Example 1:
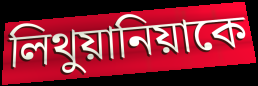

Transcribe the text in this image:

লিথুয়ানিয়াকে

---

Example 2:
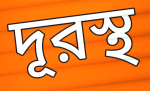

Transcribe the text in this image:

দূরস্থ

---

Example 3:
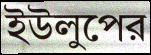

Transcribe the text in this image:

ইউলুপের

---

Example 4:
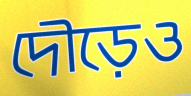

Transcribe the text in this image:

দৌড়েও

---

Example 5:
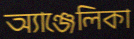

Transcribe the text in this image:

অ্যাঞ্জেলিকা